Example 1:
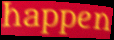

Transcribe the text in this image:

happen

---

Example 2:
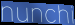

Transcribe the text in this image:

nunchi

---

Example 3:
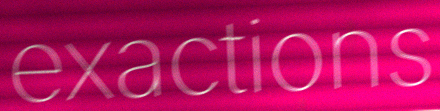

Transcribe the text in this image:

exactions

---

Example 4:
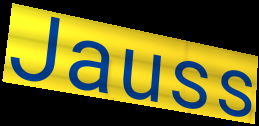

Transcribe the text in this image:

Jauss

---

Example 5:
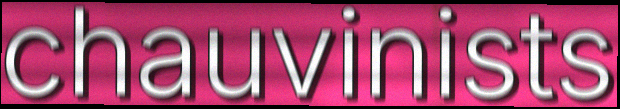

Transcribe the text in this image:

chauvinists